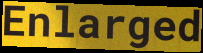
Enlarged